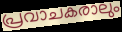
പ്രവാചകരാലും